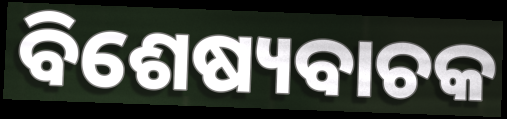
ବିଶେଷ୍ୟବାଚକ